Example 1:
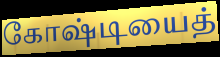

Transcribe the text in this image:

கோஷ்டியைத்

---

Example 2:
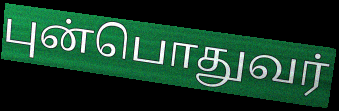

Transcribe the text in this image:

புன்பொதுவர்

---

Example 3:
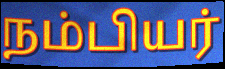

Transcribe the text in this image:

நம்பியர்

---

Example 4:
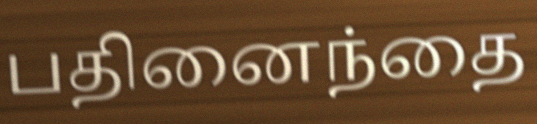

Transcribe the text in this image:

பதினைந்தை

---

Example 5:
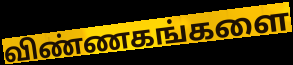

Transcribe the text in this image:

விண்ணகங்களை